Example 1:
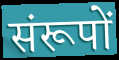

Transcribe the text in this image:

संरूपों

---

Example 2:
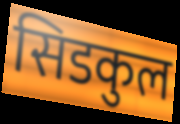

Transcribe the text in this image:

सिडकुल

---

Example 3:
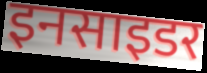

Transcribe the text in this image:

इनसाइडर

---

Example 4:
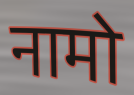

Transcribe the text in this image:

नामो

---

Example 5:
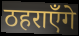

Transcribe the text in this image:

ठहराएँगे